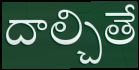
దాల్చితే